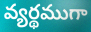
వ్యర్థముగా